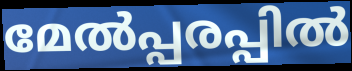
മേൽപ്പരപ്പിൽ